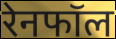
रेनफॉल